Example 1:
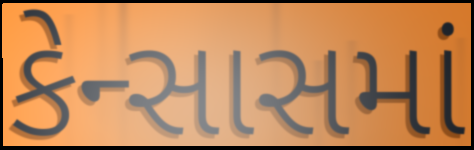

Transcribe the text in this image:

કેન્સાસમાં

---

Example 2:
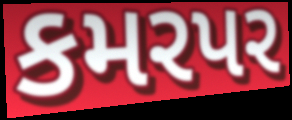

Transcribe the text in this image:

કમરપર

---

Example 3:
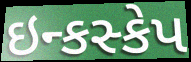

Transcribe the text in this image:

ઇન્કસ્કેપ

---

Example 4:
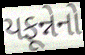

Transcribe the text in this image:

યફૂન્નેનો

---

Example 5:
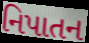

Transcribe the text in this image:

નિપાતન